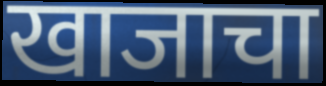
खाजाचा